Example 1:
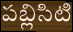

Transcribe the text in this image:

పబ్లిసిటి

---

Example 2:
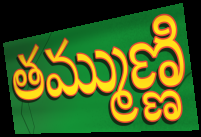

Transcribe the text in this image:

తమ్ముణ్ణి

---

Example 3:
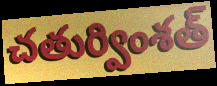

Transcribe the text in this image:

చతుర్వింశత్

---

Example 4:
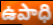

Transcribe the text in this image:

ఉపాధి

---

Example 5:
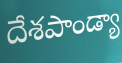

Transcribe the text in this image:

దేశపాండ్యా